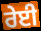
ਰੇਈ